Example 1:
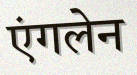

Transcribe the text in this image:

एंगलेन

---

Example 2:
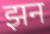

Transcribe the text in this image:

झन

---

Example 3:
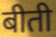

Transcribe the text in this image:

बीती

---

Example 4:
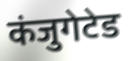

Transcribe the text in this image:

कंजुगेटेड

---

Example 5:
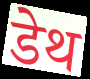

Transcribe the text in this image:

डेथ